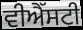
ਵੀਐੱਸਟੀ